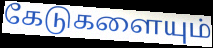
கேடுகளையும்